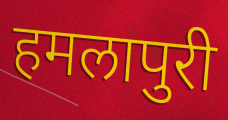
हमलापुरी